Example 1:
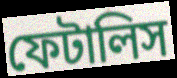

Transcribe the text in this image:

ফেটালিস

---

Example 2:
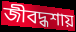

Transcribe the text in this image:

জীবদ্ধশায়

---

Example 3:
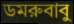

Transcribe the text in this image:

ডমরুবাবু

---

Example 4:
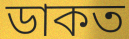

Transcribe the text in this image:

ডাকত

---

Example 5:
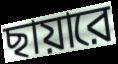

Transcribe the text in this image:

ছায়ারে